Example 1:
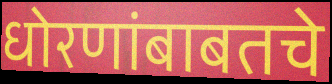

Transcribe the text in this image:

धोरणांबाबतचे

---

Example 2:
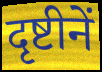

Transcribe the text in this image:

दृष्टीनें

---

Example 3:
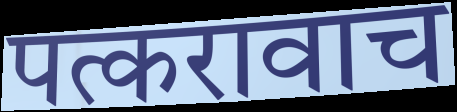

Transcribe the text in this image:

पत्करावाच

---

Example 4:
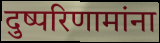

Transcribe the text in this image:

दुष्परिणामांना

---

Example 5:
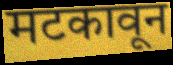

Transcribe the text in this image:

मटकावून